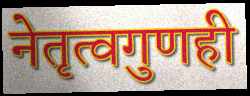
नेतृत्वगुणही